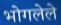
भोगलेले